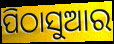
ପିଠାସୁଆର